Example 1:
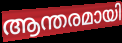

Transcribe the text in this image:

ആന്തരമായി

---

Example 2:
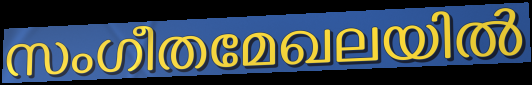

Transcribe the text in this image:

സംഗീതമേഖലയിൽ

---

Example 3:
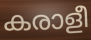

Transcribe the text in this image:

കരാളീ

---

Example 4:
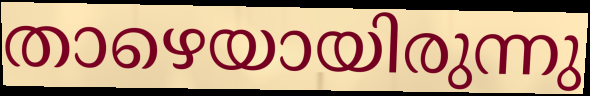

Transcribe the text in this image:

താഴെയായിരുന്നു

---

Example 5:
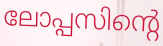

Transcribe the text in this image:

ലോപ്പസിന്റെ